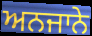
ਅਨਜਾਨੇ